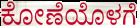
ಕೋಣೆಯೊಳಗೆ